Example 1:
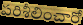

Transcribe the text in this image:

పరిశీలించారో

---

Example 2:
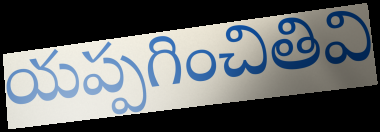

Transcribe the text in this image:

యప్పగించితివి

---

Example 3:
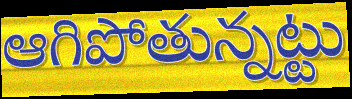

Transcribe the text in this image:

ఆగిపోతున్నట్టు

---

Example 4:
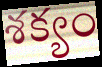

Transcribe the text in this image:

శక్యం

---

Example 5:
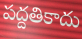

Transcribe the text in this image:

పద్దతికాదు